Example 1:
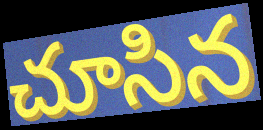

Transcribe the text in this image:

చూసిన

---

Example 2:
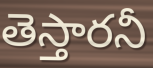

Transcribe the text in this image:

తెస్తారనీ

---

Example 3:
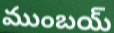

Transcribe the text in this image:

ముంబయ్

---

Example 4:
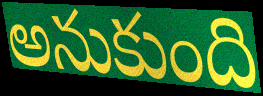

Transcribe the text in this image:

అనుకుంది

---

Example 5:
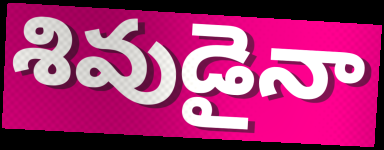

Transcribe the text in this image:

శివుడైనా